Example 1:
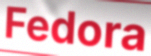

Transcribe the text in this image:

Fedora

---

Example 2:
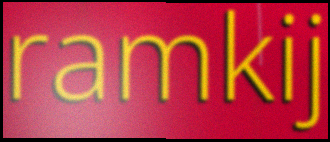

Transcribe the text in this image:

ramkij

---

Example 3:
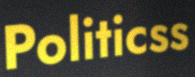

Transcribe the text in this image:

Politicss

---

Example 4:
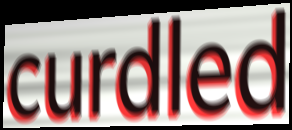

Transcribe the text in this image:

curdled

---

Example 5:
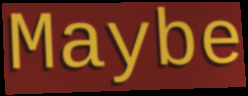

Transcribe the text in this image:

Maybe